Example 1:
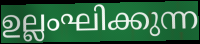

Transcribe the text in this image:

ഉല്ലംഘിക്കുന്ന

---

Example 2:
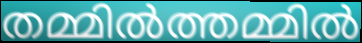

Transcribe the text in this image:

തമ്മിൽത്തമ്മിൽ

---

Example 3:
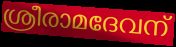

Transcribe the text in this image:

ശ്രീരാമദേവന്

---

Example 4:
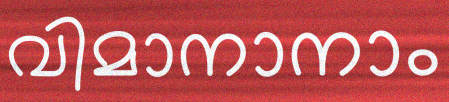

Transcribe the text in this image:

വിമാനാനാം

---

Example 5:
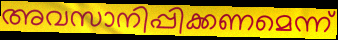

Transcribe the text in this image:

അവസാനിപ്പിക്കണമെന്ന്